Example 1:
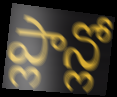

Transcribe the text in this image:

ప్లాన్లో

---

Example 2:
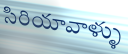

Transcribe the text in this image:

సిరియావాళ్ళు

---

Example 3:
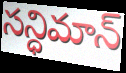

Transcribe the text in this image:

సన్ధిమాన్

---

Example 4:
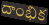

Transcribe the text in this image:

దాంభిక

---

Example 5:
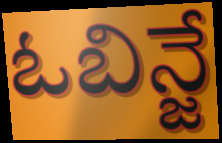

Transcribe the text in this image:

ఓబిన్జే